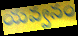
యవ్వనం